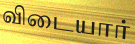
விடையார்